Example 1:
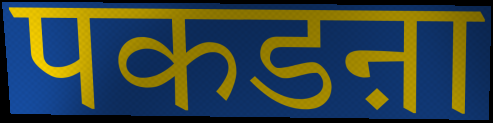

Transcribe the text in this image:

पकडऩा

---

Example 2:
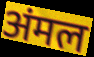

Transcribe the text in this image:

अंमल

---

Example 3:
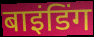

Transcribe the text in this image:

बाइंडिंग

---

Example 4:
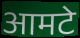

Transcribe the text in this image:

आमटे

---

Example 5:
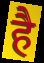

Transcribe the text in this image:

है